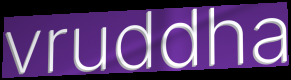
vruddha